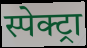
स्पेक्ट्रा